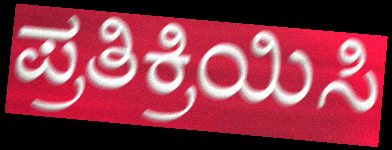
ಪ್ರತಿಕ್ರಿಯಿಸಿ